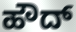
ಹೌದ್